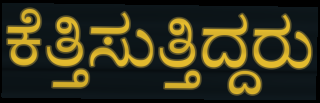
ಕೆತ್ತಿಸುತ್ತಿದ್ದರು